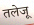
तलेजू